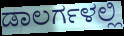
ಡಾಲರ್ಗಳಲ್ಲಿ